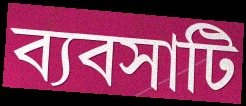
ব্যবসাটি